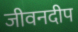
जीवनदीप